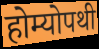
होम्योपथी